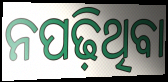
ନପଢ଼ିଥିବା